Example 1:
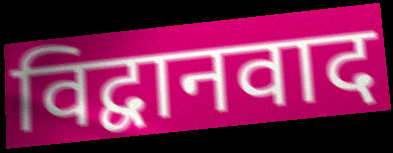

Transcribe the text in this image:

विद्वानवाद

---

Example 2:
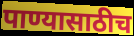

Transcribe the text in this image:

पाण्यासाठीच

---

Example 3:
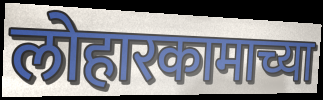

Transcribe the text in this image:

लोहारकामाच्या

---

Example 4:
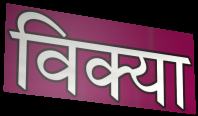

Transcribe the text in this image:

विक्या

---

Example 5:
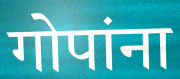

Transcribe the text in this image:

गोपांना